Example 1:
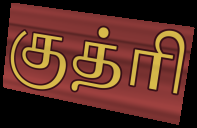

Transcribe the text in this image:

குத்ரி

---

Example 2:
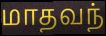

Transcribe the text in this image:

மாதவந்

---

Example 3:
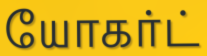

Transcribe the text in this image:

யோகர்ட்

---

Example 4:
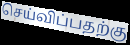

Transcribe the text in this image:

செய்விப்பதற்கு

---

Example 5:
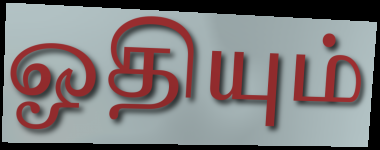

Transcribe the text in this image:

ஓதியும்